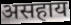
असहाय